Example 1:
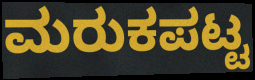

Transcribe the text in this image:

ಮರುಕಪಟ್ಟ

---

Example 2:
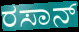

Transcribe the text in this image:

ರಸಾನ್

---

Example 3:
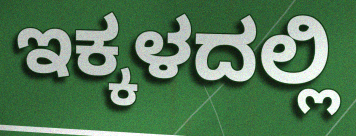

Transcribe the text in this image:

ಇಕ್ಕಳದಲ್ಲಿ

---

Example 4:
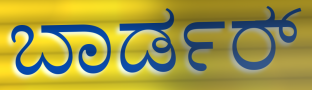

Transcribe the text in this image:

ಬಾರ್ಡರ್‍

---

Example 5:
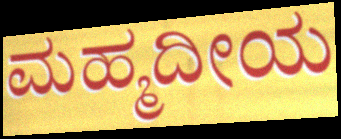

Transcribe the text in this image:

ಮಹ್ಮದೀಯ